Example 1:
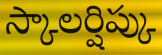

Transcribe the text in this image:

స్కాలర్షిప్కు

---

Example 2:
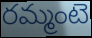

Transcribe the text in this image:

రమ్మంటె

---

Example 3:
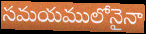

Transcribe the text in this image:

సమయములోనైనా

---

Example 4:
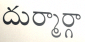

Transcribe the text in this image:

దుర్మార్గా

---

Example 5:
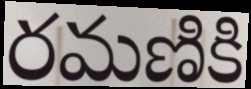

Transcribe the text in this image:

రమణికి